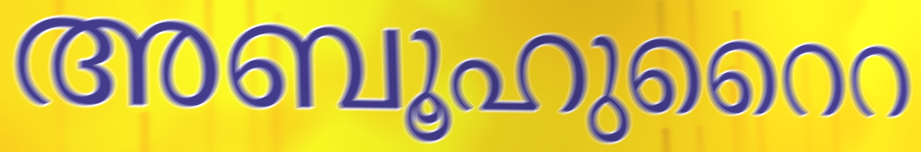
അബൂഹുറൈറ